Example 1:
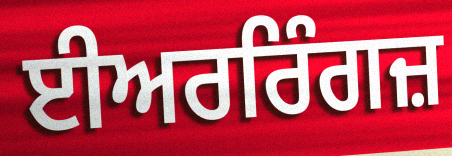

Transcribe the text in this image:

ਈਅਰਰਿੰਗਜ਼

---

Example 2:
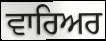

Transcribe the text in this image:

ਵਾਰਿਅਰ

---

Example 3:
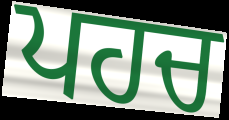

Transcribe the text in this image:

ਪਹਚ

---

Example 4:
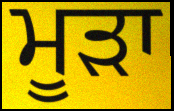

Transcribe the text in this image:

ਮੂੜਾ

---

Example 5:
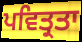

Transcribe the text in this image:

ਪਵਿਤ੍ਰਤਾ